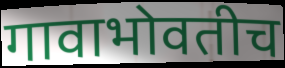
गावाभोवतीच